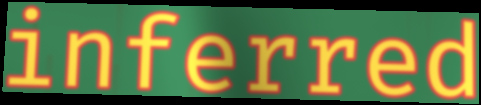
inferred